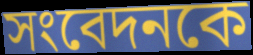
সংবেদনকে